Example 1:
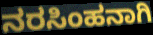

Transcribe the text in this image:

ನರಸಿಂಹನಾಗಿ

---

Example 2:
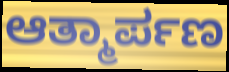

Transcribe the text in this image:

ಆತ್ಮಾರ್ಪಣ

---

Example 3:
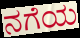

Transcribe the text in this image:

ನಗೆಯ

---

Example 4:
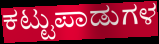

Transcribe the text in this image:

ಕಟ್ಟುಪಾಡುಗಳ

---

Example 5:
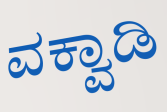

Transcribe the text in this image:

ವಕ್ವಾಡಿ